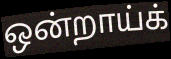
ஒன்றாய்க்